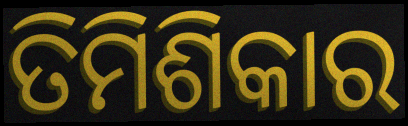
ତିମିଶିକାର